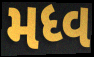
મધ્વ